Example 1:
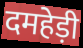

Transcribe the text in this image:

दमहेड़ी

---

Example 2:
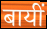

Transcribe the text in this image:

बायीं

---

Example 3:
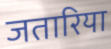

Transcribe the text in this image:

जतारिया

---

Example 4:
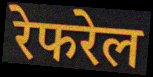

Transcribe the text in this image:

रेफरेल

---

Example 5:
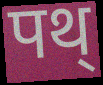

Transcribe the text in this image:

पथ्